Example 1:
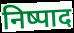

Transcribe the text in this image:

निष्पाद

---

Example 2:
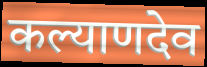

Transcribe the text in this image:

कल्याणदेव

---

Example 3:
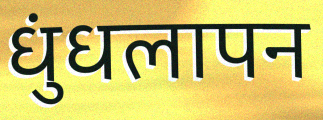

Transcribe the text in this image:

धुंधलापन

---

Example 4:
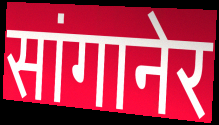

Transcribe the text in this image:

सांगानेर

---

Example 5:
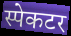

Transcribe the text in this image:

स्पेकटर